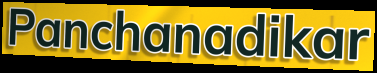
Panchanadikar